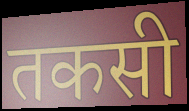
तकसी